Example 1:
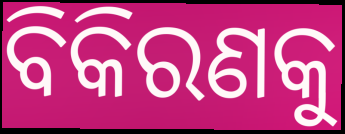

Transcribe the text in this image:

ବିକିରଣକୁ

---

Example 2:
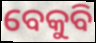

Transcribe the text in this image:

ବେକୁବି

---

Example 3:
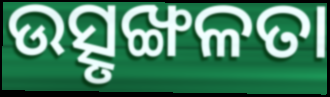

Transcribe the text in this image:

ଉତ୍ସୃଙ୍ଖଳତା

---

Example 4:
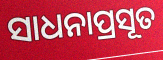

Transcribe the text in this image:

ସାଧନାପ୍ରସୂତ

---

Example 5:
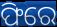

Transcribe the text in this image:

ଫିରେ